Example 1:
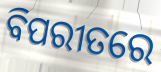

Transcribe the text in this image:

ବିପରୀତରେ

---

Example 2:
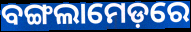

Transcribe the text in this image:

ବଙ୍ଗଲାମେଡ଼ରେ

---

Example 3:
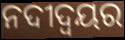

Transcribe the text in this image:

ନଦୀଦ୍ବୟର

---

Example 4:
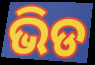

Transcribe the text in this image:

ଭିଡ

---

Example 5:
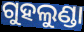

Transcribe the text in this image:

ଗୁହଲୁଣ୍ଡା